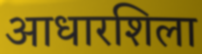
आधारशिला